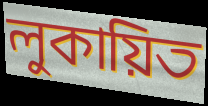
লুকায়িত